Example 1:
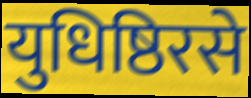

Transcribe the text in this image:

युधिष्ठिरसे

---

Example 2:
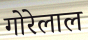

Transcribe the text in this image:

गोरेलाल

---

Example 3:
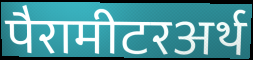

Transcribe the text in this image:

पैरामीटरअर्थ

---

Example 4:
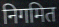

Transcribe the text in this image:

निगमित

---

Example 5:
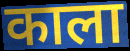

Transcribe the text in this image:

काला